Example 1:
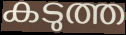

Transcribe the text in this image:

കടുത്ത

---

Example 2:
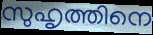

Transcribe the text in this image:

സുഹൃത്തിനെ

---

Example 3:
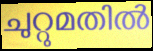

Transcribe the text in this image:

ചുറ്റുമതിൽ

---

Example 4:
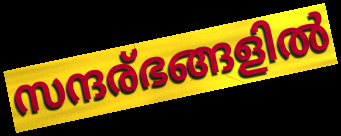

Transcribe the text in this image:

സന്ദര്ഭങ്ങളിൽ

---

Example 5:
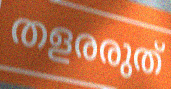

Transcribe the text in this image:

തളരരുത്